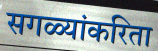
सगळ्यांकरिता